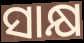
ସାକ୍ଷ